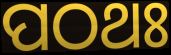
ପଠଥଃ